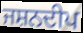
ਜਸ਼ਨਦੀਪ